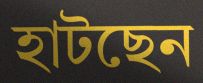
হাটছেন